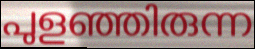
പുളഞ്ഞിരുന്ന